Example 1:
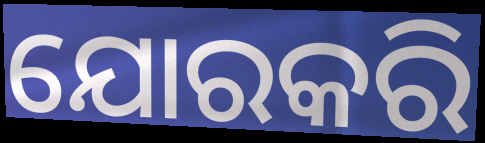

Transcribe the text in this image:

ଯୋରକରି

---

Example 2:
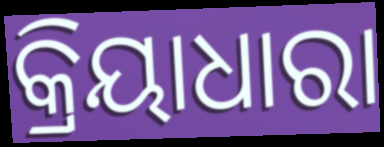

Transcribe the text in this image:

କ୍ରିୟାଧାରା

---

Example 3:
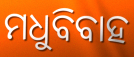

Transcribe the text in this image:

ମଧୁବିବାହ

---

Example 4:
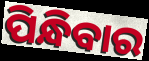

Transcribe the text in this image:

ପିନ୍ଧିବାର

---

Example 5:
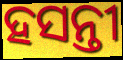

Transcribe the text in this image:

ହସନ୍ତୀ